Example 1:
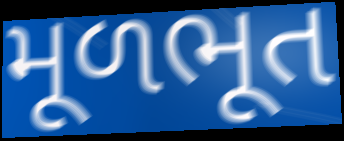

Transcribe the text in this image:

મૂળભૂત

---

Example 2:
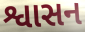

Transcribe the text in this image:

શ્વાસન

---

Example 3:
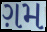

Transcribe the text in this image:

ગ઼મ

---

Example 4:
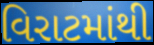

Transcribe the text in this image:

વિરાટમાંથી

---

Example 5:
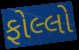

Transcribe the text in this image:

ફોલ્લો